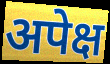
अपेक्ष